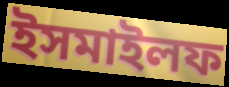
ইসমাইলফ